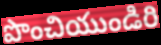
పొంచియుండిరి